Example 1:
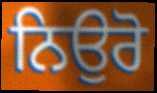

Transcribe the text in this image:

ਨਿਉਰੋ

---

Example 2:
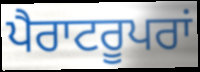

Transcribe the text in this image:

ਪੈਰਾਟਰੂਪਰਾਂ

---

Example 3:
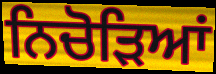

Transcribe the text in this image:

ਨਿਚੋੜਿਆਂ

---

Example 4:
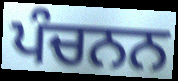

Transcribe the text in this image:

ਪੰਚਨਨ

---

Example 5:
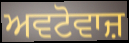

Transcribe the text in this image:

ਅਵਟੋਵਾਜ਼